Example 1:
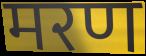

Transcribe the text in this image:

मरण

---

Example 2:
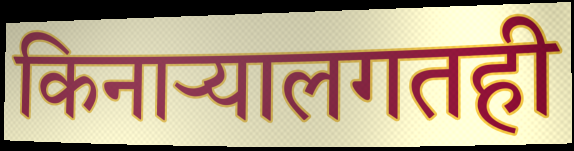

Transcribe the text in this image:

किनाऱ्यालगतही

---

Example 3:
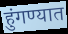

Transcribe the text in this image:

हुंगण्यात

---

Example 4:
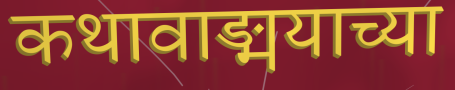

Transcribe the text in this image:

कथावाङ्मयाच्या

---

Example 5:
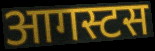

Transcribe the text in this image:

आगस्टस